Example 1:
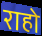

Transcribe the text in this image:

राहो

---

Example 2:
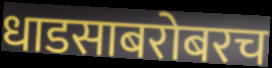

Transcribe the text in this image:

धाडसाबरोबरच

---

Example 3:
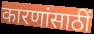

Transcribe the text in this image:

कारणांसाठीं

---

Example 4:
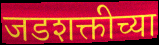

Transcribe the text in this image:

जडशक्तीच्या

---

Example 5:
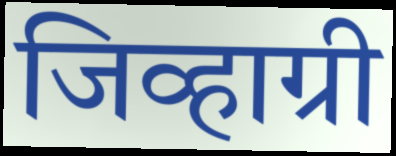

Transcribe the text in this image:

जिव्हाग्री